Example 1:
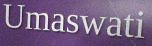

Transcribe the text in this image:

Umaswati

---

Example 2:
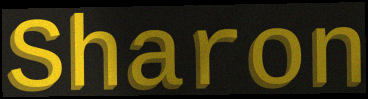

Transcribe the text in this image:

Sharon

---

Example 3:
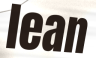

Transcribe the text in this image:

lean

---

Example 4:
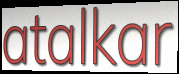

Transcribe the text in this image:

atalkar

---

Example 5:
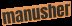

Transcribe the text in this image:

manusher